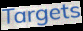
Targets